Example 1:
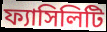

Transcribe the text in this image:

ফ্যাসিলিটি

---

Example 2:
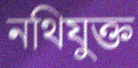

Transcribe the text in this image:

নথিযুক্ত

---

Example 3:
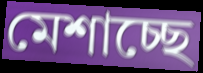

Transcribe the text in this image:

মেশাচ্ছে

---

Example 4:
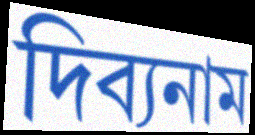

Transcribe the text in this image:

দিব্যনাম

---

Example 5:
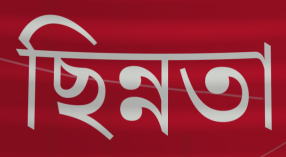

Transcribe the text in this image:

ছিন্নতা